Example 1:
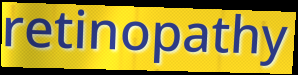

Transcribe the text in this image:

retinopathy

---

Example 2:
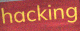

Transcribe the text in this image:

hacking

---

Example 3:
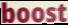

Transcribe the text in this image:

boost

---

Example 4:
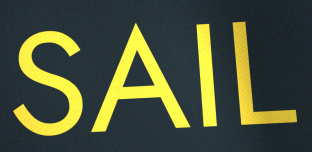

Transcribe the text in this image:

SAIL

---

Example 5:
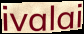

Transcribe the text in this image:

ivalai